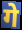
गे